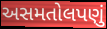
અસમતોલપણું